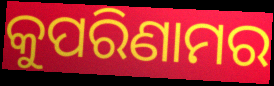
କୁପରିଣାମର